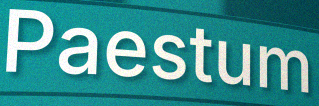
Paestum